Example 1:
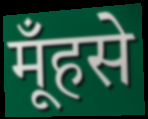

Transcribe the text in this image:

मूँहसे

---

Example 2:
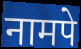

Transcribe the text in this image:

नामपे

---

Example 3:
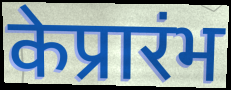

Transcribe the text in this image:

केप्रारंभ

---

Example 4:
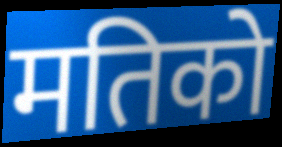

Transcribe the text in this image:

मतिको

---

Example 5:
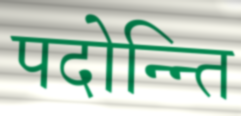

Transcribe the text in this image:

पदोन्न्ति